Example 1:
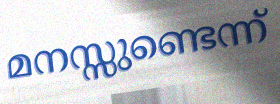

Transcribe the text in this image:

മനസ്സുണ്ടെന്ന്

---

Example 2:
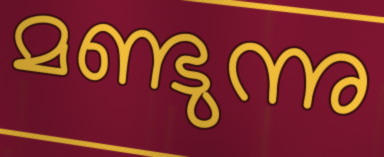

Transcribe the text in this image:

മണ്ടുന്നു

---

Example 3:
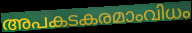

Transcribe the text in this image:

അപകടകരമാംവിധം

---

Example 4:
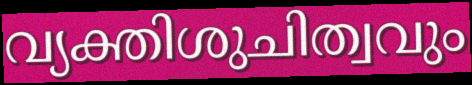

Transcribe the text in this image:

വ്യക്തിശുചിത്വവും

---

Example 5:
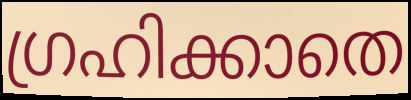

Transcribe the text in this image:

ഗ്രഹിക്കാതെ